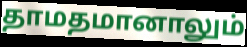
தாமதமானாலும்